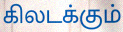
கிலடக்கும்